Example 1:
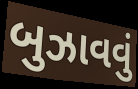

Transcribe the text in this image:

બુઝાવવું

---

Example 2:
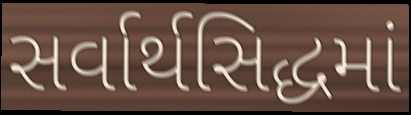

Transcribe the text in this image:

સર્વાર્થસિદ્ધમાં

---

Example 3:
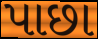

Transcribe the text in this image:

પાછા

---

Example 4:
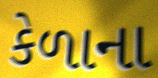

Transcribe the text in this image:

કેળાના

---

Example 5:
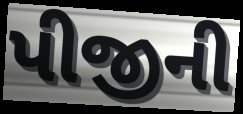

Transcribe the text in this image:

પીજીની